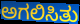
ಅಗಲಿಸಿತು